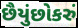
છૈયુંછોકરું